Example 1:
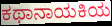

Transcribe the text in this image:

ಕಥಾನಾಯಕಿಯ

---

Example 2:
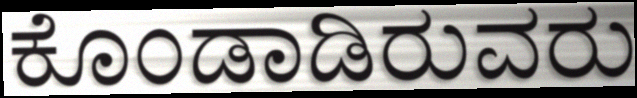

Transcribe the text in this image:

ಕೊಂಡಾಡಿರುವರು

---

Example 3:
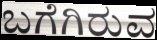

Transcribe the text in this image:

ಬಗೆಗಿರುವ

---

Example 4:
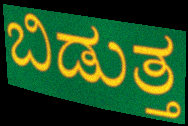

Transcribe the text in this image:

ಬಿಡುತ್ತ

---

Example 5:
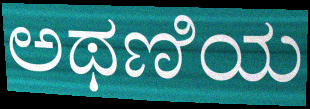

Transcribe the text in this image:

ಅಥಣಿಯ